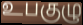
உபகுழு